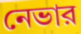
নেভার